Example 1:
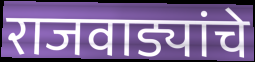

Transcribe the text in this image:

राजवाड्यांचे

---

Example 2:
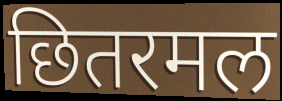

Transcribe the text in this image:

छितरमल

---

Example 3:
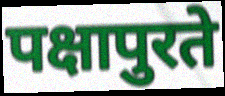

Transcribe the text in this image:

पक्षापुरते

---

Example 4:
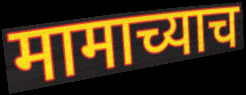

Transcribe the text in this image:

मामाच्याच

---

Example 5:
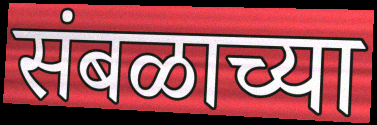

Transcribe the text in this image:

संबळाच्या